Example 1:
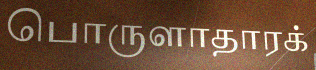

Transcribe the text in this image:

பொருளாதாரக்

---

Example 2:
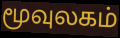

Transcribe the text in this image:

மூவுலகம்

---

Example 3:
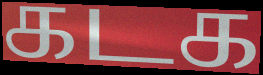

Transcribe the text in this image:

கடக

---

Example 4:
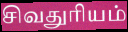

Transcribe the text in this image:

சிவதுரியம்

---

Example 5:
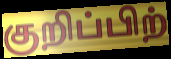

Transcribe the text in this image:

குறிப்பிற்